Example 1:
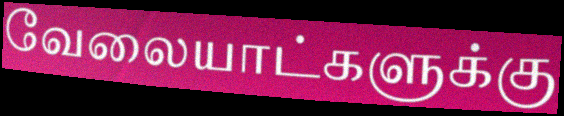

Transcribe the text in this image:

வேலையாட்களுக்கு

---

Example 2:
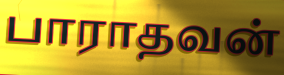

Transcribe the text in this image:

பாராதவன்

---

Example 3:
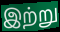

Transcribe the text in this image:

இற்று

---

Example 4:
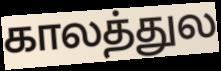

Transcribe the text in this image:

காலத்துல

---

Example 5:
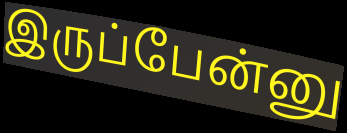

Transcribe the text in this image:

இருப்பேன்னு